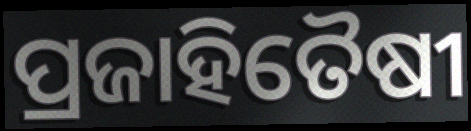
ପ୍ରଜାହିତୈଷୀ